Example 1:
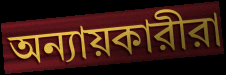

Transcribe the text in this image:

অন্যায়কারীরা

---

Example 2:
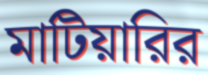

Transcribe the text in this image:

মাটিয়ারির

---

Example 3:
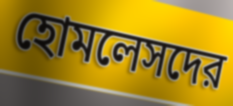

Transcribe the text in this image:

হোমলেসদের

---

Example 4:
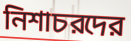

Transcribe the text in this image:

নিশাচরদের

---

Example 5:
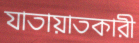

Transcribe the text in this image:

যাতায়াতকারী